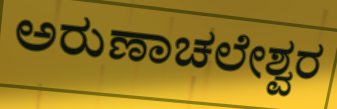
ಅರುಣಾಚಲೇಶ್ವರ